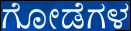
ಗೋಡೆಗಳ